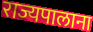
राज्यपालाना